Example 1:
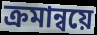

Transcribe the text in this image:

ক্রমান্বয়ে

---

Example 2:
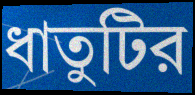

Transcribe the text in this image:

ধাতুটির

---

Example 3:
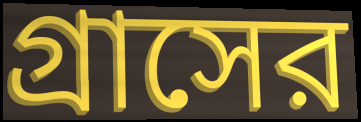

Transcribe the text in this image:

গ্রাসের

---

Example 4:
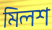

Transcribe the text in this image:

মিলশ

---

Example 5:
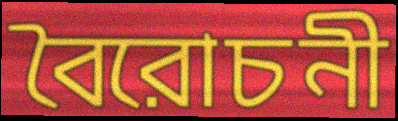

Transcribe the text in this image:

বৈরোচনী